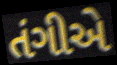
તંગીએ